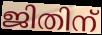
ജിതിന്